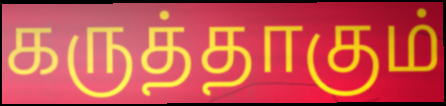
கருத்தாகும்